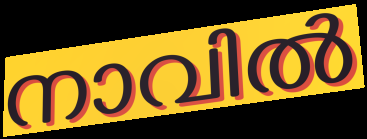
നാവിൽ